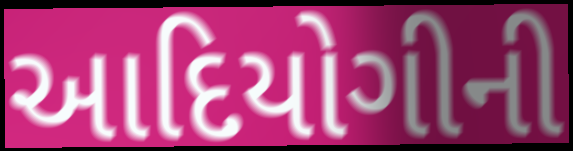
આદિયોગીની